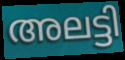
അലട്ടി